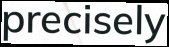
precisely